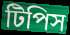
টিপিস